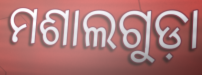
ମଶାଲଗୁଡ଼ା